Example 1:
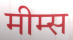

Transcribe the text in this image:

मीम्‍स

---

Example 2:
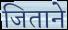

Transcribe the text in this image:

जिताने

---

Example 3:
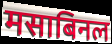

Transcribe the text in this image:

मसाबिनल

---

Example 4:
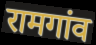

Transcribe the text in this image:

रामगांव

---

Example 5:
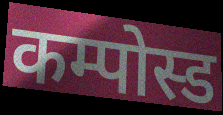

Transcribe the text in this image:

कम्पोस्ड